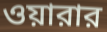
ওয়ারার